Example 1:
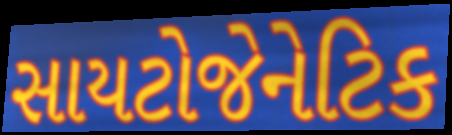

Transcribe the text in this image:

સાયટોજેનેટિક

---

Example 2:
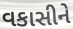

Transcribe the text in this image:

વકાસીને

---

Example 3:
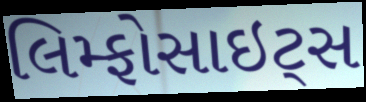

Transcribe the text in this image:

લિમ્ફોસાઇટ્સ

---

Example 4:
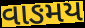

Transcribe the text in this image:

વાઙમય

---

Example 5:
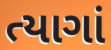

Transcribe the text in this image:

ત્યાગાં